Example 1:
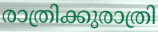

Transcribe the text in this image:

രാത്രിക്കുരാത്രി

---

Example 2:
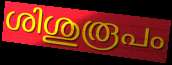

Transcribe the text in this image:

ശിശുരൂപം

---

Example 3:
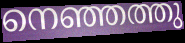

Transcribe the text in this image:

നെഞ്ഞത്തു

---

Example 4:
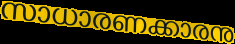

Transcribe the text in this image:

സാധാരണക്കാരനു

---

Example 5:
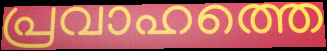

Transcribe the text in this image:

പ്രവാഹത്തെ